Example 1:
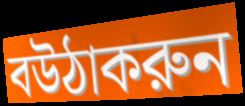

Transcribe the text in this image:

বউঠাকরুন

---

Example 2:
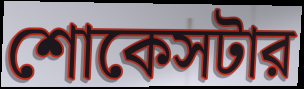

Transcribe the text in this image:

শোকেসটার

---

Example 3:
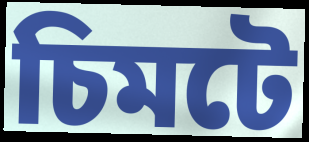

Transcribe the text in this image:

চিমটে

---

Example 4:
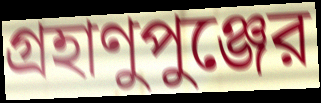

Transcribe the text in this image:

গ্রহাণুপুঞ্জের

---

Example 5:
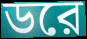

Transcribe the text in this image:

ডরে